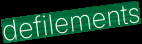
defilements